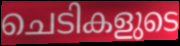
ചെടികളുടെ